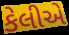
કેલીએ